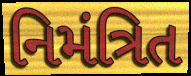
નિમંત્રિત